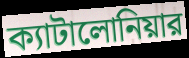
ক্যাটালোনিয়ার